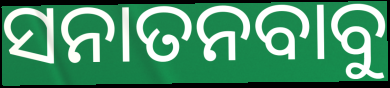
ସନାତନବାବୁ